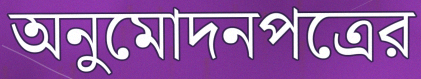
অনুমোদনপত্রের